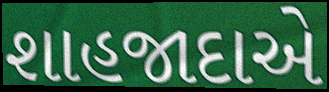
શાહજાદાએ